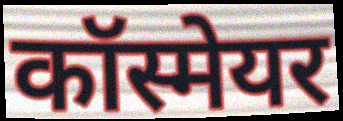
कॉस्मेयर